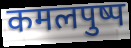
कमलपुष्प